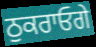
ਠੁਕਰਾਓਗੇ